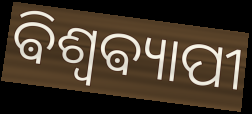
ଵିଶ୍ଵଵ୍ୟାପୀ